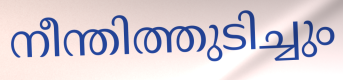
നീന്തിത്തുടിച്ചും